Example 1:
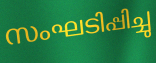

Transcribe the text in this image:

സംഘടിപ്പിച്ചു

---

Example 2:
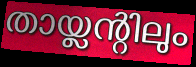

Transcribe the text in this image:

തായ്ലന്റിലും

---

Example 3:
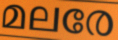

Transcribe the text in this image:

മലരേ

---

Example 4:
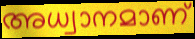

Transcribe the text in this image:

അധ്വാനമാണ്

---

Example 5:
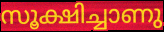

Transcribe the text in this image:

സൂക്ഷിച്ചാണു